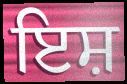
ਇਸ਼